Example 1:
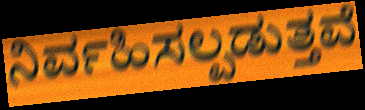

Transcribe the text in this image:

ನಿರ್ವಹಿಸಲ್ಪಡುತ್ತವೆ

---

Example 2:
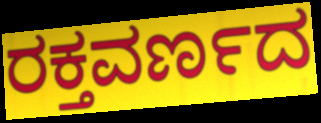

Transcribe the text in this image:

ರಕ್ತವರ್ಣದ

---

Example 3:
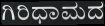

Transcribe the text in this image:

ಗಿರಿಧಾಮದ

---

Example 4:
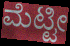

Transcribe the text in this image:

ಮೆಟ್ಟೀ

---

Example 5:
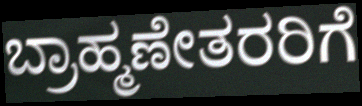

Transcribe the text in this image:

ಬ್ರಾಹ್ಮಣೇತರರಿಗೆ